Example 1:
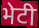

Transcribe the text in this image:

भेटी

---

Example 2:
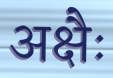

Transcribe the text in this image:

अक्षैः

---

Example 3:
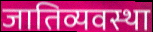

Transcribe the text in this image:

जातिव्यवस्था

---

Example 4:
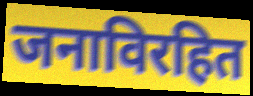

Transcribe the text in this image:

जनाविरहित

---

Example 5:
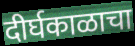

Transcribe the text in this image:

दीर्घकाळाचा